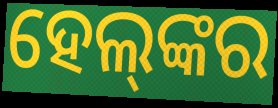
ହେଲ୍‌ଙ୍କର